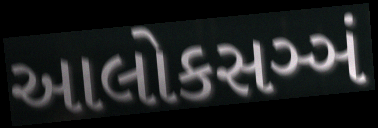
આલોકસઞ્ઞં